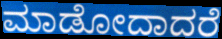
ಮಾಡೋದಾದರೆ